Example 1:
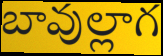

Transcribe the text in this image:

బావుల్లాగ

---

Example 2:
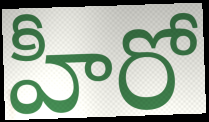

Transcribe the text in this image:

హీరో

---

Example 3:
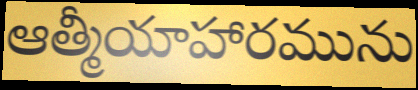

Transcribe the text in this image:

ఆత్మీయాహారమును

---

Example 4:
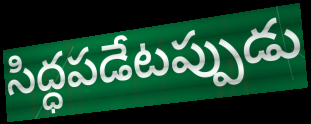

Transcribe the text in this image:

సిద్ధపడేటప్పుడు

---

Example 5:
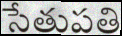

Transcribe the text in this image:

సేతుపతి